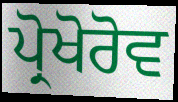
ਪ੍ਰੋਖੋਰੋਵ